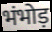
भंभोड़